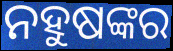
ନହୁଷଙ୍କର